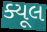
ક્યૂલ